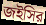
জইসির